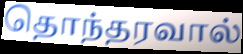
தொந்தரவால்